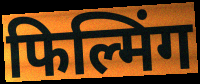
फिल्मिंग